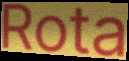
Rota